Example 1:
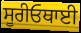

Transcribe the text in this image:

ਸੂਰੀਓਥਾਈ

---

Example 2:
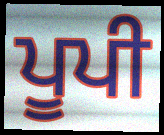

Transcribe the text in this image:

ਪੂਪੀ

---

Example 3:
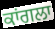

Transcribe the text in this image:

ਕਾਂਗਲਾ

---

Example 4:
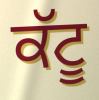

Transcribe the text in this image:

ਕੱਟੂ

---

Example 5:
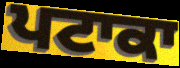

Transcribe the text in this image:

ਪਟਾਕਾ